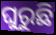
ଘୁରୁଛି